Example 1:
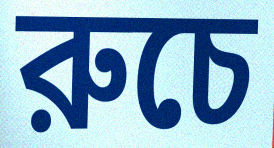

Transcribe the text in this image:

রুচে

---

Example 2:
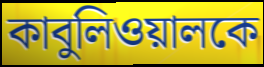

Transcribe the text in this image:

কাবুলিওয়ালকে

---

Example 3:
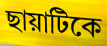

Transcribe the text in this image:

ছায়াটিকে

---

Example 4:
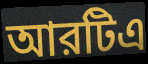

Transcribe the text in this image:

আরটিএ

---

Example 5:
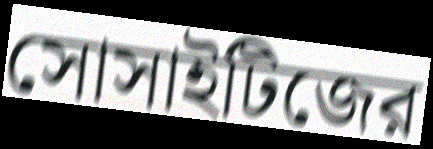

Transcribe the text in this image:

সোসাইটিজের